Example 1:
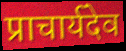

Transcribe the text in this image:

प्राचार्यदेव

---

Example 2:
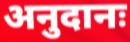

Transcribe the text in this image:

अनुदानः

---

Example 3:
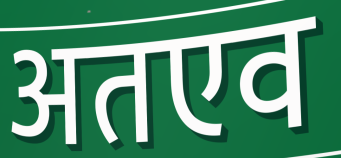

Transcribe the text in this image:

अतएव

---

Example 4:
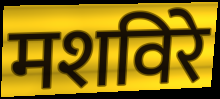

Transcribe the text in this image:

मशविरे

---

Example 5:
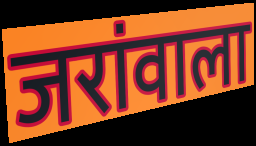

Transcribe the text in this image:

जरांवाला